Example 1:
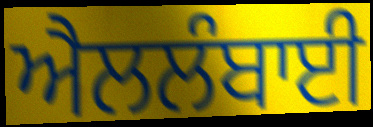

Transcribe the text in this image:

ਐਲਲੰਬਾਈ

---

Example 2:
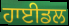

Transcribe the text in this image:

ਹਾਈਡਲ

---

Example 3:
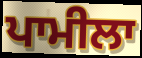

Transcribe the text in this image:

ਪਾਮੀਲਾ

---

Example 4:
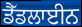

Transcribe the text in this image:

ਡੈੱਡਲਾਈਨ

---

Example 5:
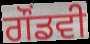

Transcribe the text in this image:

ਗੌਂਡਵੀ